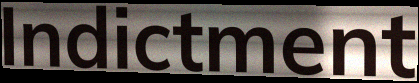
Indictment